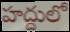
హద్దులో